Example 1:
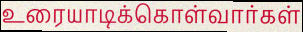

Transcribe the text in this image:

உரையாடிக்கொள்வார்கள்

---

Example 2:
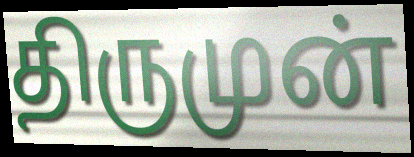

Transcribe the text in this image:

திருமுன்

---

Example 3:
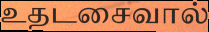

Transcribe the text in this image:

உதடசைவால்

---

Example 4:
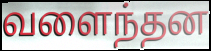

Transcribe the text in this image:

வளைந்தன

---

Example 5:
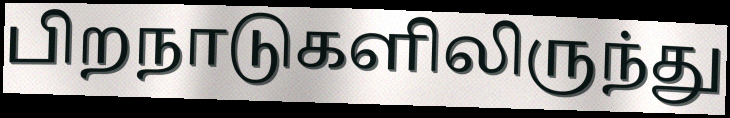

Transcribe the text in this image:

பிறநாடுகளிலிருந்து